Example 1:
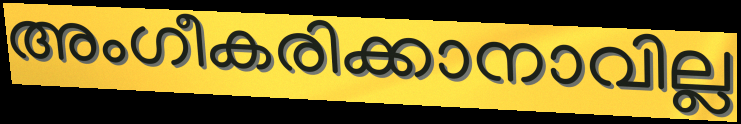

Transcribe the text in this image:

അംഗീകരിക്കാനാവില്ല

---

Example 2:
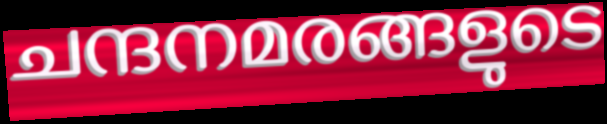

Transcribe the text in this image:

ചന്ദനമരങ്ങളുടെ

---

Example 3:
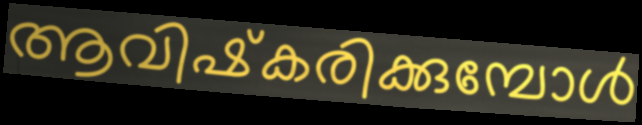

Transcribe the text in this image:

ആവിഷ്‌കരിക്കുമ്പോൾ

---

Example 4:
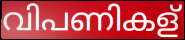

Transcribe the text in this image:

വിപണികള്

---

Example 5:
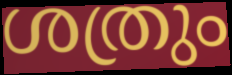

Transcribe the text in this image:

ശത്രും